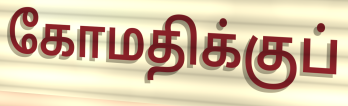
கோமதிக்குப்